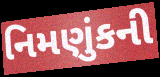
નિમણુંકની